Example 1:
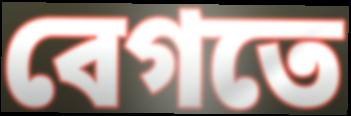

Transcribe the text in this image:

বেগতে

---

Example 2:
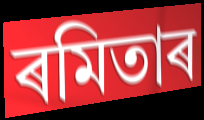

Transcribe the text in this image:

ৰমিতাৰ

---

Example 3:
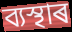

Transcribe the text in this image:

ব্যস্থাৰ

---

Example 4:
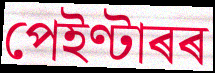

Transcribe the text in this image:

পেইণ্টাৰৰ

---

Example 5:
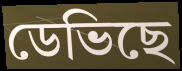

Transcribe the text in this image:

ডেভিছে